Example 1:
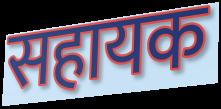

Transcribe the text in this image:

सहायक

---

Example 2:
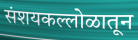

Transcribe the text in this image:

संशयकल्लोळातून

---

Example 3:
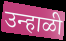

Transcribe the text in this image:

उन्हाळी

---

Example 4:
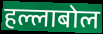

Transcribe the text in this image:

हल्लाबोल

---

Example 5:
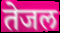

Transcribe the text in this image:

तेजल